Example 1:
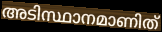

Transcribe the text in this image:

അടിസ്ഥാനമാണിത്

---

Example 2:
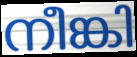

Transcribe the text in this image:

നീങ്കി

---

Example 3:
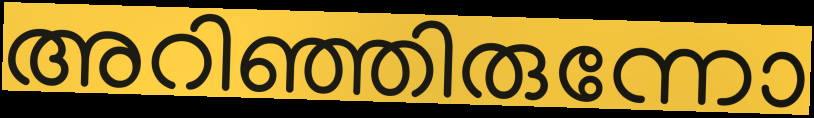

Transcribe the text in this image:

അറിഞ്ഞിരുന്നോ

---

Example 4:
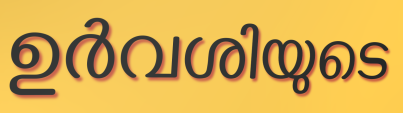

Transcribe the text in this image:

ഉർവശിയുടെ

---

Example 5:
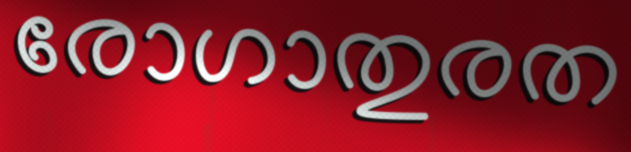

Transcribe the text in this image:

രോഗാതുരത